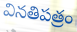
వినతిపత్రం